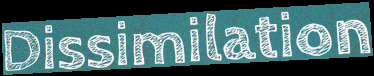
Dissimilation